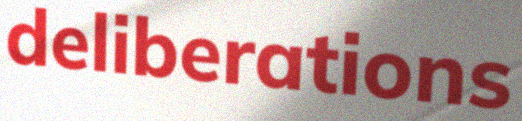
deliberations